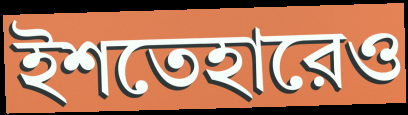
ইশতেহারেও